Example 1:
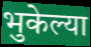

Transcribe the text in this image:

भुकेल्या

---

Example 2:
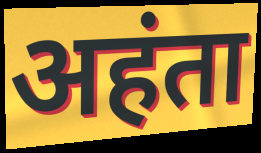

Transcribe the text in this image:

अहंता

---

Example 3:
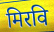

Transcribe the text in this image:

मिरवि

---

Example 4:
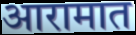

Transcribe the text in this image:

आरामात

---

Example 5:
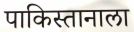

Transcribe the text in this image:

पाकिस्तानाला